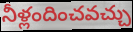
నీళ్లందించవచ్చు